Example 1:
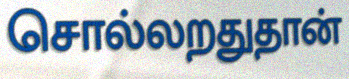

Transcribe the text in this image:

சொல்லறதுதான்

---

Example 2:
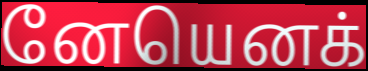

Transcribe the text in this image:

னேயெனக்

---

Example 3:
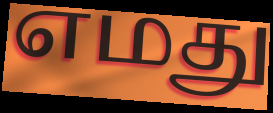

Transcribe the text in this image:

எமது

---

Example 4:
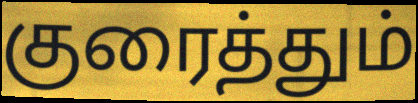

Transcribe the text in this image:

குரைத்தும்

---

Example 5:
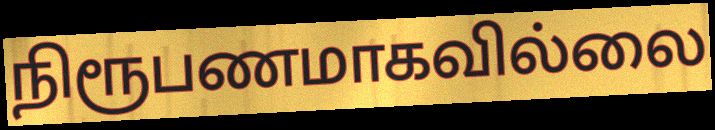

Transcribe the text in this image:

நிரூபணமாகவில்லை